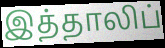
இத்தாலிப்